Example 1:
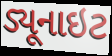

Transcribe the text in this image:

ડ્યૂનાઇટ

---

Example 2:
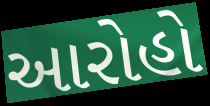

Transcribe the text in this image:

આરોહો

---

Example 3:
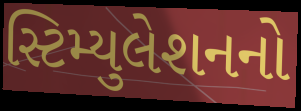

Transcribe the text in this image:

સ્ટિમ્યુલેશનનો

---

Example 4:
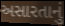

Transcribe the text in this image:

અસારતાનું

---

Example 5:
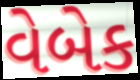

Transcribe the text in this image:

વેબેક